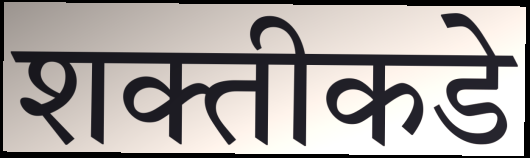
शक्तीकडे